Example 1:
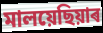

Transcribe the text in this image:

মালয়েছিয়াৰ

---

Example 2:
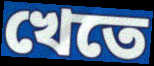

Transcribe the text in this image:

খেতে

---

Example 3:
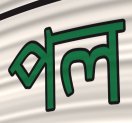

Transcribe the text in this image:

পল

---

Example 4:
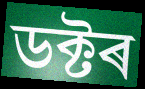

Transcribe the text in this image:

ডক্টৰ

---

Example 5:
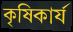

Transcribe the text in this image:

কৃষিকাৰ্য